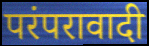
परंपरावादी